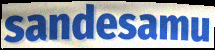
sandesamu